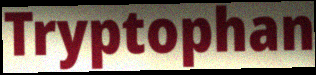
Tryptophan